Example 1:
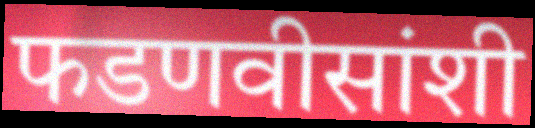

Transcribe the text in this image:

फडणवीसांशी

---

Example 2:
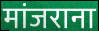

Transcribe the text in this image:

मांजराना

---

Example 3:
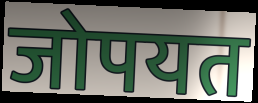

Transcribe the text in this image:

जोपयत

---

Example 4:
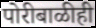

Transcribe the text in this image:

पोरीबाळीही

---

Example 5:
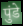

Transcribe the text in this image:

पुंडे